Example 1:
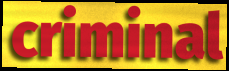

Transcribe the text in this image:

criminal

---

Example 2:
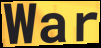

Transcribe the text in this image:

War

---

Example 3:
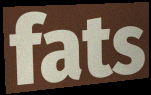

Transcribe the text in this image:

fats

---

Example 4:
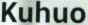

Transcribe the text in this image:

Kuhuo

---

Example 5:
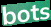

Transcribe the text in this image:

bots